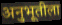
अनुभूतीला